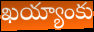
ఖయ్యాంకు